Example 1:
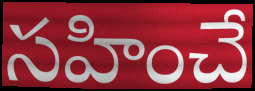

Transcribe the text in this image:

సహించే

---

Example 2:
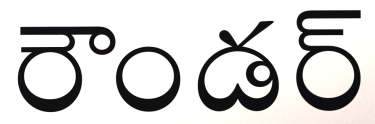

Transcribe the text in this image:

రౌండర్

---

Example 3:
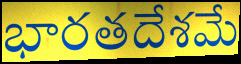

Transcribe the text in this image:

భారతదేశమే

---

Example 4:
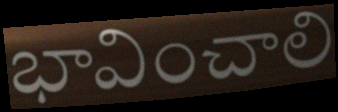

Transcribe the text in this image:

భావించాలి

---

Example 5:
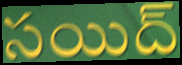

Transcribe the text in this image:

సయిద్